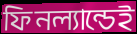
ফিনল্যান্ডেই